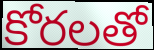
కోరలతో